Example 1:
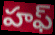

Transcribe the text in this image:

హఫ్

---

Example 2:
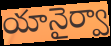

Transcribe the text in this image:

యానైర్వా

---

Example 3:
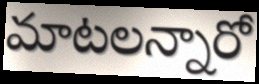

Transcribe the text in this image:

మాటలన్నారో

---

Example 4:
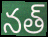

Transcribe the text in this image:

నత్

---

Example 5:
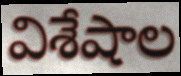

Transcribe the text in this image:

విశేషాల